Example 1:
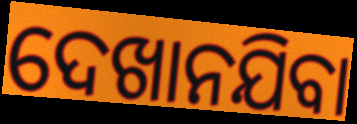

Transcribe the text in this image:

ଦେଖାନଯିବା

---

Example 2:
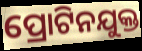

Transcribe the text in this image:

ପ୍ରୋଟିନଯୁକ୍ତ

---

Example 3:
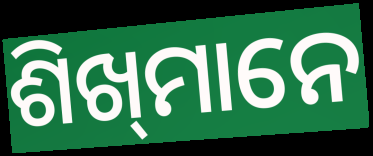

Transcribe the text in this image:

ଶିଖ୍‌ମାନେ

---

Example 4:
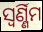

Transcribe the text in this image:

ସ୍ୱର୍ଣ୍ଣିମ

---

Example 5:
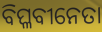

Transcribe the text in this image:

ବିପ୍ଳବୀନେତା